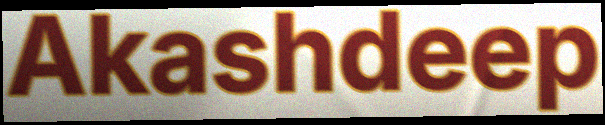
Akashdeep